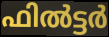
ഫിൽട്ടർ